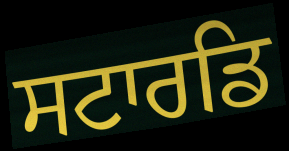
ਸਟਾਰਡਿ